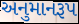
અનુમાનરૂપ